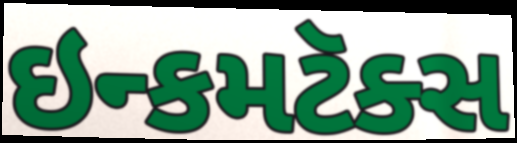
ઇન્કમટૅક્સ